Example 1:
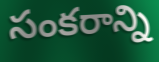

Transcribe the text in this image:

సంకరాన్ని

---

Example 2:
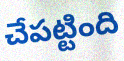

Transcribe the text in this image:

చేపట్టింది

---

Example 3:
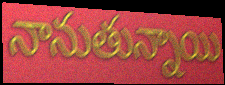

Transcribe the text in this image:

నానుతున్నాయి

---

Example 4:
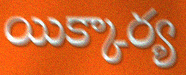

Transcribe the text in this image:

యిక్కార్య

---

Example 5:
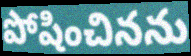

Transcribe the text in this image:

పోషించినను